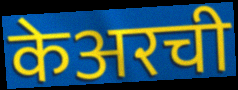
केअरची